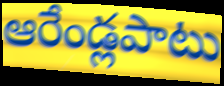
ఆరేండ్లపాటు